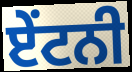
ਏਂਟਨੀ